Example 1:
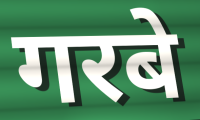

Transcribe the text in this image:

गरबे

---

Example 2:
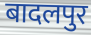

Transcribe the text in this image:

बादलपुर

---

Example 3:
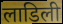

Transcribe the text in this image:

लाडिली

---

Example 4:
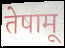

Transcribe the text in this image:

तेषामू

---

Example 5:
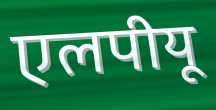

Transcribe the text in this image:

एलपीयू